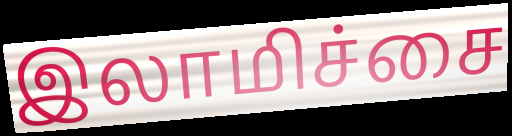
இலாமிச்சை